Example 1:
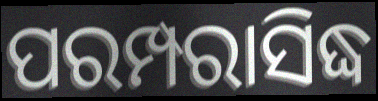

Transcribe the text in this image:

ପରମ୍ପରାସିଦ୍ଧ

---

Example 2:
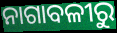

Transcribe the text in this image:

ନାଗାବଳୀରୁ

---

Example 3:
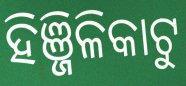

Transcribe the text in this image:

ହିଞ୍ଜିଳିକାଟୁ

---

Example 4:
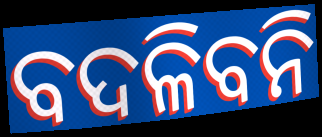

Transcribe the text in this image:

ବଦଳିବନି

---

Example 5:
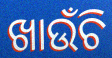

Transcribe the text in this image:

ଖାଉଁଚି